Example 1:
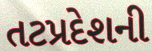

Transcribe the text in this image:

તટપ્રદેશની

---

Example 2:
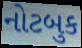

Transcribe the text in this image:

નોટબુક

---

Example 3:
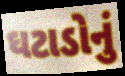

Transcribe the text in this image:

ઘટાડોનું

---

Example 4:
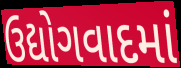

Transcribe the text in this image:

ઉદ્યોગવાદમાં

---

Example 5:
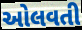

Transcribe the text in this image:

ઓલવતી